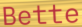
Bette